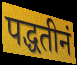
पद्धतीनं